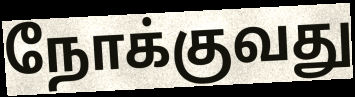
நோக்குவது